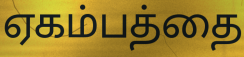
ஏகம்பத்தை